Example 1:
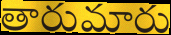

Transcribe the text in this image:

తారుమారు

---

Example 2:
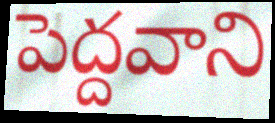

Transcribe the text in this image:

పెద్దవాని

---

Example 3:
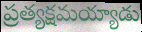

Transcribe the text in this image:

ప్రత్యక్షమయ్యాడు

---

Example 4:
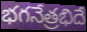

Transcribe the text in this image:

భగనేత్రభిదే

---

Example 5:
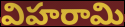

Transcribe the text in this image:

విహరామి